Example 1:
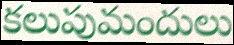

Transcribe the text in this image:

కలుపుమందులు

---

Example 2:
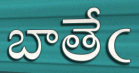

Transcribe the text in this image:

బాతేఁ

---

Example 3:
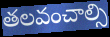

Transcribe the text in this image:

తలవంచాల్సి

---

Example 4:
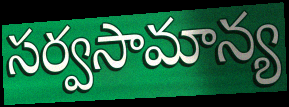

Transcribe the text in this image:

సర్వసామాన్య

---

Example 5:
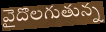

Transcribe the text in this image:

వైదొలగుతున్న